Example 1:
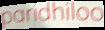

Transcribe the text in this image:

paridhiloo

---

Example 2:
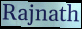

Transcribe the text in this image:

Rajnath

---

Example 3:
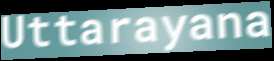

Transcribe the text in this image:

Uttarayana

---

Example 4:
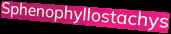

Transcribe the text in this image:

Sphenophyllostachys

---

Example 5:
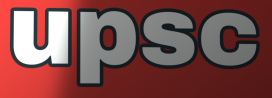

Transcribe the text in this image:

upsc